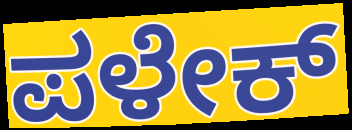
ಪಳೇಕ್